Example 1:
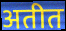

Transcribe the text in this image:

अतीत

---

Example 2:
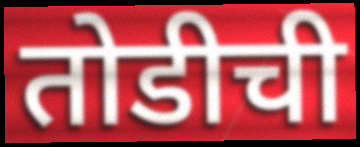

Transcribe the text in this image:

तोडीची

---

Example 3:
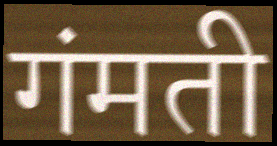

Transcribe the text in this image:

गंमती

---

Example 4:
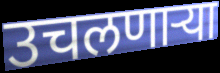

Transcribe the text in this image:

उचलणाऱ्या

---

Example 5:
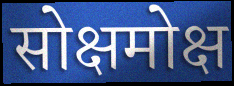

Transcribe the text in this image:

सोक्षमोक्ष